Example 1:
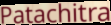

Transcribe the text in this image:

Patachitra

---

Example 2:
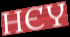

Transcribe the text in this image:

HEY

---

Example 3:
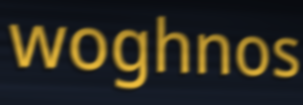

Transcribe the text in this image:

woghnos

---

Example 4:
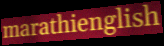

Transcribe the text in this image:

marathienglish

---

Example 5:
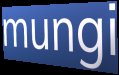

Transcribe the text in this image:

mungi